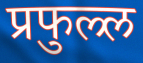
प्रफुल्ल